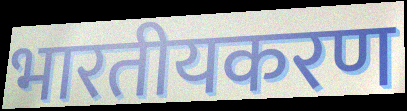
भारतीयकरण